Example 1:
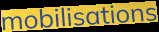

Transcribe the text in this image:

mobilisations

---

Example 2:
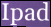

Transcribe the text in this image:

Ipad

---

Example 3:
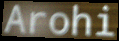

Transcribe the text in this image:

Arohi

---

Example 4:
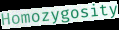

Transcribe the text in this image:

Homozygosity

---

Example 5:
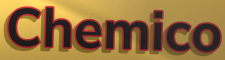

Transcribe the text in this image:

Chemico